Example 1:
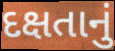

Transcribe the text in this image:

દક્ષતાનું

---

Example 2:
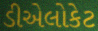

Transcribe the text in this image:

ડીએલોકેટ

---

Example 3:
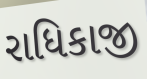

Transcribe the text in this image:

રાધિકાજી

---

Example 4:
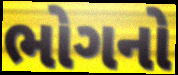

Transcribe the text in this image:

ભોગનો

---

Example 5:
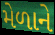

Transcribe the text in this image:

મેળાને